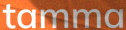
tamma